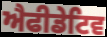
ਐਫੀਡੇਟਿਵ